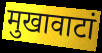
मुखावाटां